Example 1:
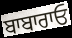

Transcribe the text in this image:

ਬਾਬਾਰਾਓ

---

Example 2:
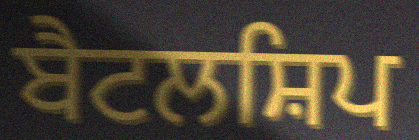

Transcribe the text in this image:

ਬੈਟਲਸ਼ਿਪ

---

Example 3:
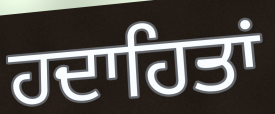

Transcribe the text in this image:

ਹਦਾਹਿਤਾਂ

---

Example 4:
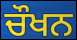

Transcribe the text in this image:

ਚੌਖਨ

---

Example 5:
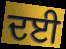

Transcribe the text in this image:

ਦਈ